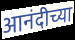
आनंदीच्या